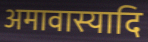
अमावास्यादि